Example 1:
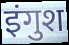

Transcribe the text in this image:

इंगुश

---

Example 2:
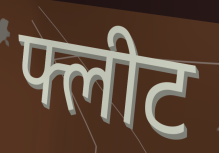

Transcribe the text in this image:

फ्लीट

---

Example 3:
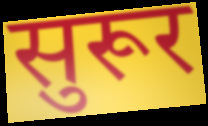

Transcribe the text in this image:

सुरूर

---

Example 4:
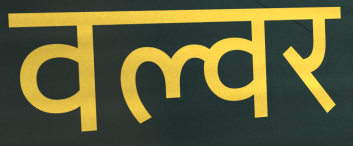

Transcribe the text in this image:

वल्वर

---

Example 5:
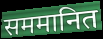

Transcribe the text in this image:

सममानित